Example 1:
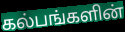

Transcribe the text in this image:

கல்பங்களின்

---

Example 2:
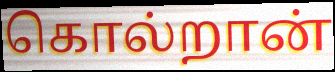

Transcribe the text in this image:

கொல்றான்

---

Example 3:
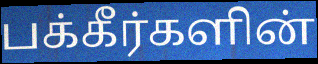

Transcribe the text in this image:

பக்கீர்களின்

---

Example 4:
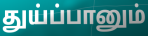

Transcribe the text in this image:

துய்ப்பானும்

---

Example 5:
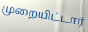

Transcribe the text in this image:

முறையிட்டார்